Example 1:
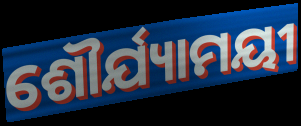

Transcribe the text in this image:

ଶୌର୍ଯ୍ୟାମୟୀ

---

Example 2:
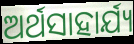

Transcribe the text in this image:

ଅର୍ଥସାହାର୍ଯ୍ୟ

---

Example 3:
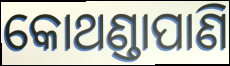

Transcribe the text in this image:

କୋଥଣ୍ଡାପାଣି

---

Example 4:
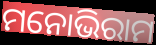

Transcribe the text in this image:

ମନୋଭିରାମ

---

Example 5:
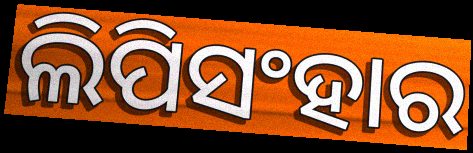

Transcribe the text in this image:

ଲିପିସଂହାର